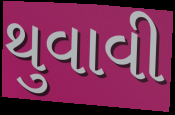
થુવાવી